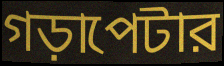
গড়াপেটার